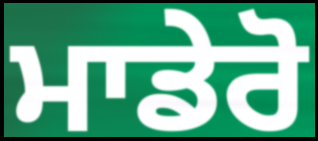
ਮਾਡੇਰੋ